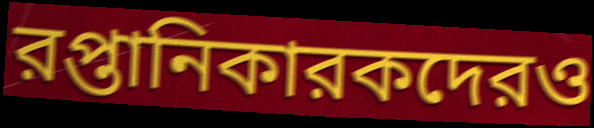
রপ্তানিকারকদেরও